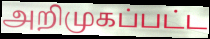
அறிமுகப்பட்ட